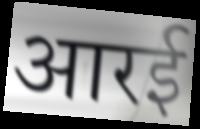
आरई